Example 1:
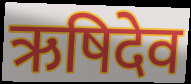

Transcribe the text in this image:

ऋषिदेव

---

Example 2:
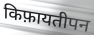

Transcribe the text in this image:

किफ़ायतीपन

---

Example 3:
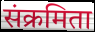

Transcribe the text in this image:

संक्रमिता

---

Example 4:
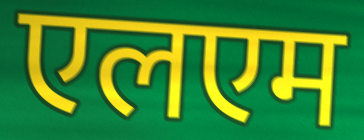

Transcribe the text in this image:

एलएम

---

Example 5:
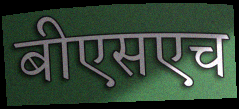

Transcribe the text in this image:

बीएसएच